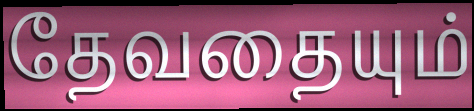
தேவதையும்